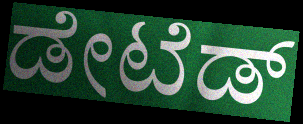
ಡೇಟೆಡ್